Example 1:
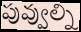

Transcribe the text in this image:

పువ్వుల్ని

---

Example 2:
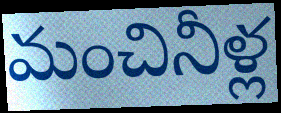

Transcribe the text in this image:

మంచినీళ్ల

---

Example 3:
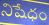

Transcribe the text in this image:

నిషేధం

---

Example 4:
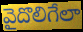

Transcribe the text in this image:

వైదొలిగేలా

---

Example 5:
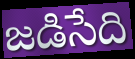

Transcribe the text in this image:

జడిసేది